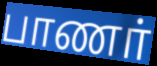
பாணர்